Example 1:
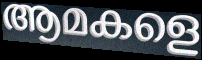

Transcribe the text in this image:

ആമകളെ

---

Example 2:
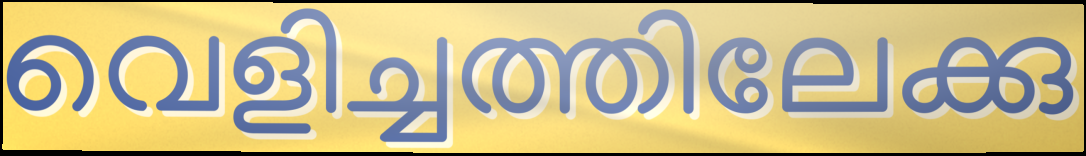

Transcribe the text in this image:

വെളിച്ചത്തിലേക്കു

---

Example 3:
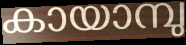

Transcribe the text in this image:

കായാമ്പു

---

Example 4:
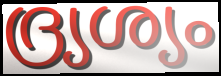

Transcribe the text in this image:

ദ്ര്യശ്യം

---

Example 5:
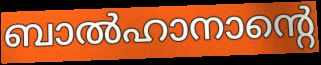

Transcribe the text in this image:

ബാൽഹാനാന്റെ